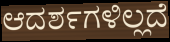
ಆದರ್ಶಗಳಿಲ್ಲದೆ